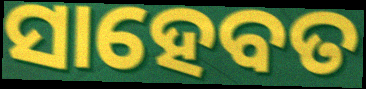
ସାହେବତ